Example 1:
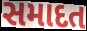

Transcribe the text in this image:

સમાદત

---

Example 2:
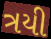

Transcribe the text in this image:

ત્રયી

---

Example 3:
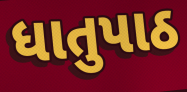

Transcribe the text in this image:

ધાતુપાઠ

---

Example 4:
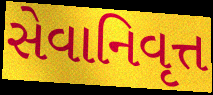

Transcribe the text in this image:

સેવાનિવૃત્ત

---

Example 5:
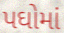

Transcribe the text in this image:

પઘોમાં